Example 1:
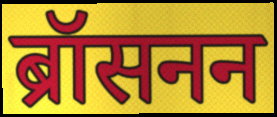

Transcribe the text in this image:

ब्रॉसनन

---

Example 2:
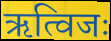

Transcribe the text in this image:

ऋत्विजः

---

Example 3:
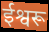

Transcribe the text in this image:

ईश्वरू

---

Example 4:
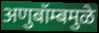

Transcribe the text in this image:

अणुबॉम्बमुळे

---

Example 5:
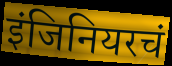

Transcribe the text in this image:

इंजिनियरचं